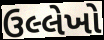
ઉલ્લેખો